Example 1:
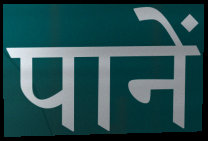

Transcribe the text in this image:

पानें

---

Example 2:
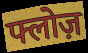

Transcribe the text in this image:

फ्लोज़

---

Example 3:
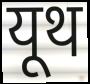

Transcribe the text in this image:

यूथ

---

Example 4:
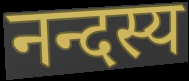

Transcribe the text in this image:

नन्दस्य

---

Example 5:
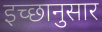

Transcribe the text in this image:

इच्‍छानुसार